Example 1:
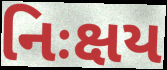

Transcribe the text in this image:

નિઃક્ષય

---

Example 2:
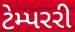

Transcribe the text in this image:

ટેમ્પરરી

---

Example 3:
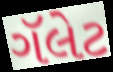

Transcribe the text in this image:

ગૅલેટ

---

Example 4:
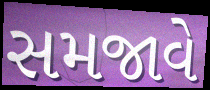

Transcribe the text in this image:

સમજાવે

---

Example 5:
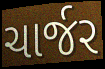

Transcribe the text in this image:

ચાર્જર